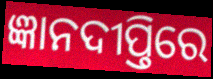
ଜ୍ଞାନଦୀପ୍ତିରେ